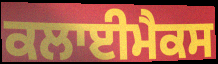
ਕਲਾਈਮੈਕਸ